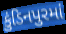
કુંડિનપુરમાં